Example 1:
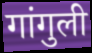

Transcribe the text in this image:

गांगुली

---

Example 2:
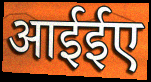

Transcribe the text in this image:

आईईए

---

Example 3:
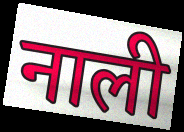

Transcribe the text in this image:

नाली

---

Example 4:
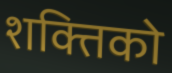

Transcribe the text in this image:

शक्तिको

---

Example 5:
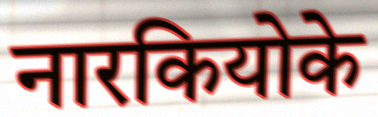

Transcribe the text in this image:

नारकियोके